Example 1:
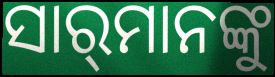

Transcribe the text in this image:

ସାର୍‌ମାନଙ୍କୁ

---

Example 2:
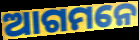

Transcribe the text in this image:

ଆଗମନେ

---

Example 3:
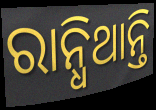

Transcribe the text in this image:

ରାନ୍ଧିଥାନ୍ତି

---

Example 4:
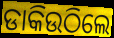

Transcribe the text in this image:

ଡାକିଉଠିଲେ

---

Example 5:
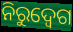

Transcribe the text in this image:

ନିରୁଦ୍ବେଗ